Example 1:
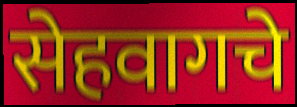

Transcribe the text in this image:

सेहवागचे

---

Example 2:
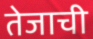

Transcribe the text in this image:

तेजाची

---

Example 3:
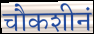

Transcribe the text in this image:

चौकशीनं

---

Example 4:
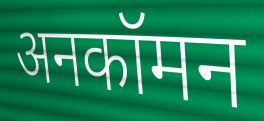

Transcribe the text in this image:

अनकॉमन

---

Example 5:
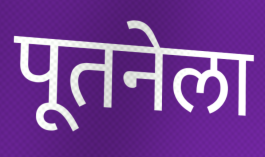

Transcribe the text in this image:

पूतनेला